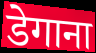
डेगाना